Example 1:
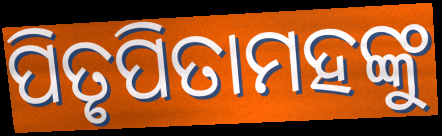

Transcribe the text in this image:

ପିତୃପିତାମହଙ୍କୁ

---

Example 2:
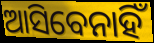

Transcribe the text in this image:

ଆସିବେନାହିଁ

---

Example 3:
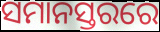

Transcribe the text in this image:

ସମାନସ୍ତରରେ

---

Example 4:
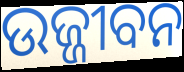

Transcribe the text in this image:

ଉଜ୍ଜୀବନ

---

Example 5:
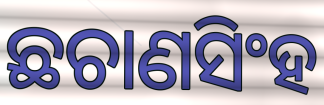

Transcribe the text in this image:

ଛଚାଣସିଂହ